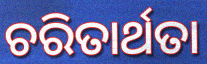
ଚରିତାର୍ଥତା